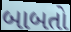
બાબતો